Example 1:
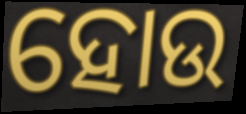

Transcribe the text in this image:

ହୋଉ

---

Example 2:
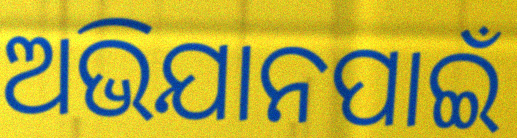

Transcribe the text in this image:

ଅଭିଯାନପାଇଁ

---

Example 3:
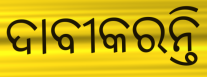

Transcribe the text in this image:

ଦାବୀକରନ୍ତି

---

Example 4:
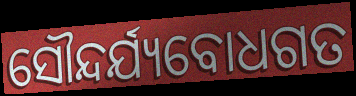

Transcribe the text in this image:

ସୌନ୍ଦର୍ଯ୍ୟବୋଧଗତ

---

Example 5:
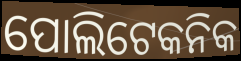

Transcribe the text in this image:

ପୋଲିଟେକନିକ